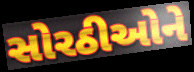
સોરઠીઓને